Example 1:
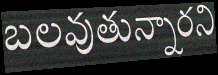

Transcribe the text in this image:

బలవుతున్నారని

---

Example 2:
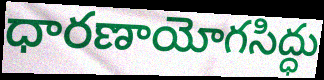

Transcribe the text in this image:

ధారణాయోగసిద్ధు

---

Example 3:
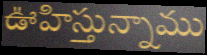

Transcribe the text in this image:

ఊహిస్తున్నాము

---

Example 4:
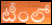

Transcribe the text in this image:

టీంలో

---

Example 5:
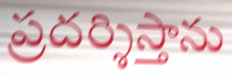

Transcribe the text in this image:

ప్రదర్శిస్తాను